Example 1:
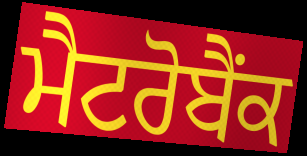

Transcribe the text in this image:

ਮੈਟਰੋਬੈਂਕ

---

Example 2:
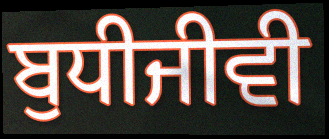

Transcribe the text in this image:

ਬੁਧੀਜੀਵੀ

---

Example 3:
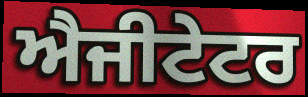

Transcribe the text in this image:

ਐਜੀਟੇਟਰ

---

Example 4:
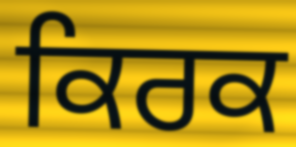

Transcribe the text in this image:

ਕਿਰਕ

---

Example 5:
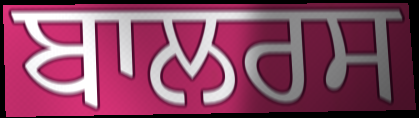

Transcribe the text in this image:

ਬਾਲਰਸ